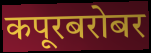
कपूरबरोबर